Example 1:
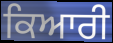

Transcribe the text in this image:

ਕਿਆਰੀ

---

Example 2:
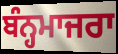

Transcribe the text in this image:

ਬੰਨ੍ਹਮਾਜਰਾ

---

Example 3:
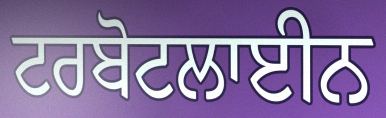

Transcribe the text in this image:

ਟਰਬੋਟਲਾਈਨ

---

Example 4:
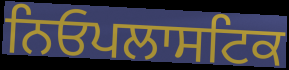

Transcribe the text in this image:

ਨਿਓਪਲਾਸਟਿਕ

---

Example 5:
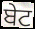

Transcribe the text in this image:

ਬੇਟ